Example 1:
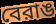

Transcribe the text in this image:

বেরাঙ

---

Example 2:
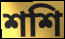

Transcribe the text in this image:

শশি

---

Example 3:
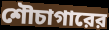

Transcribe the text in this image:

শৌচাগারের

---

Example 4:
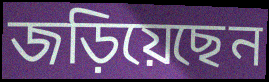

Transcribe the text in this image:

জড়িয়েছেন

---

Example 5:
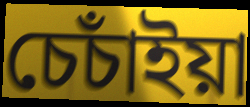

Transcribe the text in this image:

চেচাঁইয়া